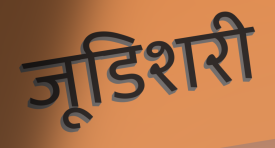
जूडिशरी